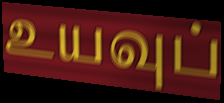
உயவுப்